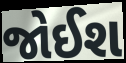
જોઈશ